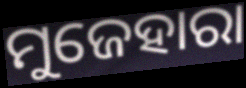
ମୁଜେହାରା